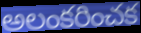
అలంకరించక